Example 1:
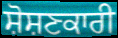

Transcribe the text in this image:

ਸ਼ੋਸ਼ਣਕਾਰੀ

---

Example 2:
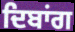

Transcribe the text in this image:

ਦਿਬਾਂਗ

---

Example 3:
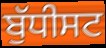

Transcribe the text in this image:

ਬੁੱਧੀਸਟ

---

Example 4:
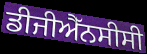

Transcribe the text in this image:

ਡੀਜੀਐੱਨਸੀਸੀ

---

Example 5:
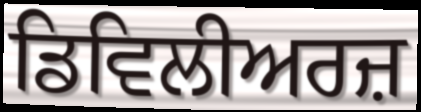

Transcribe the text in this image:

ਡਿਵਿਲੀਅਰਜ਼